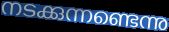
നടക്കുന്നണ്ടെന്നു